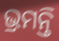
ଭ୍ରମନ୍ତି